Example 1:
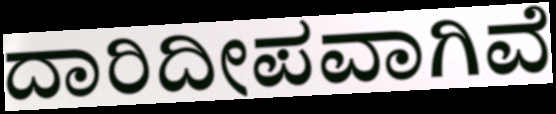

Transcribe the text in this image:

ದಾರಿದೀಪವಾಗಿವೆ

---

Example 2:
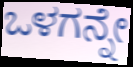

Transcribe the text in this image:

ಒಳಗನ್ನೇ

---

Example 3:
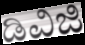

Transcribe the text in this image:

ಡಿವಿಜಿ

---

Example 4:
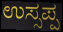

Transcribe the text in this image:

ಉಸ್ಸಪ್ಪ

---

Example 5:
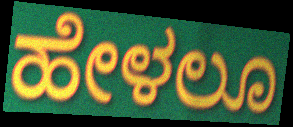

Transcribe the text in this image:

ಹೇಳಲೂ